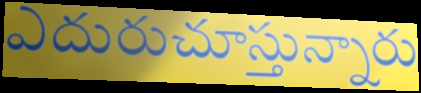
ఎదురుచూస్తున్నారు